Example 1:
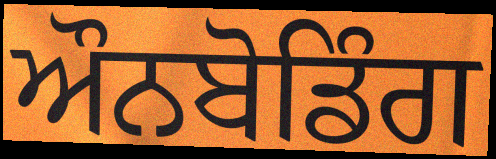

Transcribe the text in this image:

ਔਨਬੋਡਿੰਗ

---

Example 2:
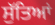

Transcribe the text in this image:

ਸੁੱਤਿਆਂ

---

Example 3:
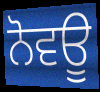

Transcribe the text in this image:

ਨੋਵਊ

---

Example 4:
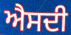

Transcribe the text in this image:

ਐਸਦੀ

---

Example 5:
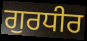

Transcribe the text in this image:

ਗੁਰਧੀਰ